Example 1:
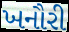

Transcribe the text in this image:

ખનૌરી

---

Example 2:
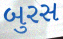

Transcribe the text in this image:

બુરસ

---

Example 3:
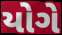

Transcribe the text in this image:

યોગે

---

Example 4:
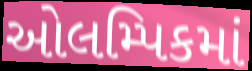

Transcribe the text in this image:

ઓલમ્પિકમાં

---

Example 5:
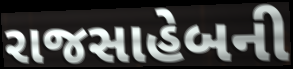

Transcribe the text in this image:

રાજસાહેબની